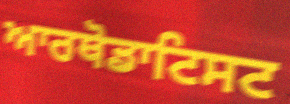
ਆਰਥੋਡਾਟਿਸਟ